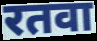
रतवा